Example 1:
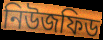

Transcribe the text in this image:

নিউজফিড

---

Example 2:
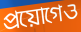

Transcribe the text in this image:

প্রয়োগেও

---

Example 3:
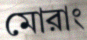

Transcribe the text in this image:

মোরাং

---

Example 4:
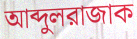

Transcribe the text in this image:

আব্দুলরাজাক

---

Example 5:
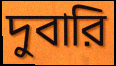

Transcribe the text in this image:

দুবারি